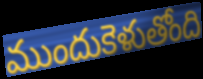
ముందుకెళుతోంది